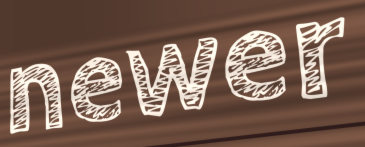
newer